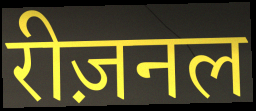
रीज़नल